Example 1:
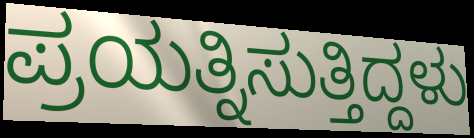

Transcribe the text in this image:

ಪ್ರಯತ್ನಿಸುತ್ತಿದ್ದಳು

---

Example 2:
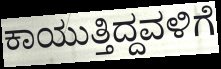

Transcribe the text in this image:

ಕಾಯುತ್ತಿದ್ದವಳಿಗೆ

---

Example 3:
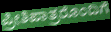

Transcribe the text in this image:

ಪ್ರೀತಿಪಾತ್ರರೊಂದಿಗೆ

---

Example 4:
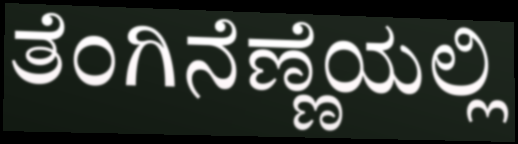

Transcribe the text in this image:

ತೆಂಗಿನೆಣ್ಣೆಯಲ್ಲಿ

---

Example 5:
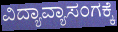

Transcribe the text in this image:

ವಿದ್ಯಾವ್ಯಾಸಂಗಕ್ಕೆ